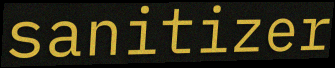
sanitizer